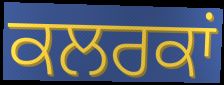
ਕਲਰਕਾਂ